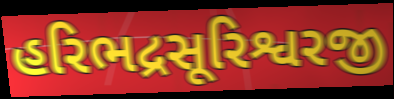
હરિભદ્રસૂરિશ્વરજી